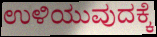
ಉಳಿಯುವುದಕ್ಕೆ